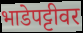
भाडेपट्टीवर